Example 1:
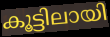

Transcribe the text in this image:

കൂട്ടിലായി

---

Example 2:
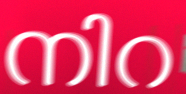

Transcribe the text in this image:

നിറ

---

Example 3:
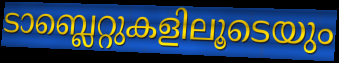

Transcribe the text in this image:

ടാബ്ലെറ്റുകളിലൂടെയും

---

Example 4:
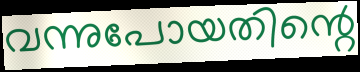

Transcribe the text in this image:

വന്നുപോയതിന്റെ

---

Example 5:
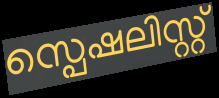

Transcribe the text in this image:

സ്പെഷലിസ്റ്റ്